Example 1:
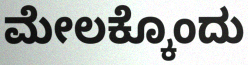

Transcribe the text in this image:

ಮೇಲಕ್ಕೊಂದು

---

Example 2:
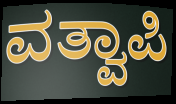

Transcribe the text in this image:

ವತ್ವಾಪಿ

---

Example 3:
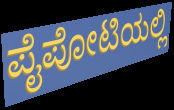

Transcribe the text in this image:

ಪೈಪೋಟಿಯಲ್ಲಿ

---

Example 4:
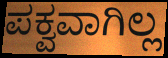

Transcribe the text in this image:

ಪಕ್ವವಾಗಿಲ್ಲ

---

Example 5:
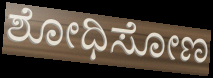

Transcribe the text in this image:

ಶೋಧಿಸೋಣ